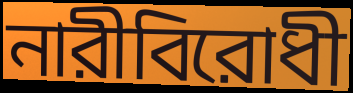
নারীবিরোধী